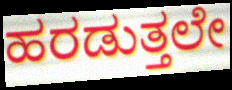
ಹರಡುತ್ತಲೇ